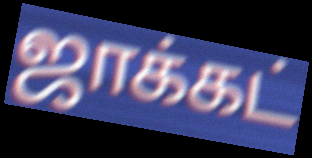
ஜாக்கட்